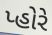
પ્હોરે